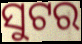
ସୁଟର